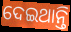
ଦେଇଥାନ୍ତି